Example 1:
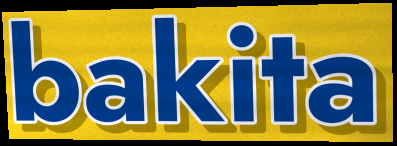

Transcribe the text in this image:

bakita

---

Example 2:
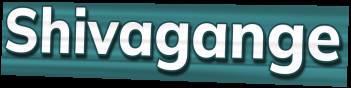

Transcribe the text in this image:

Shivagange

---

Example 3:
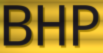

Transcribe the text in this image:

BHP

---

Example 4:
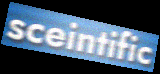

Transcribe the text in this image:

sceintific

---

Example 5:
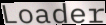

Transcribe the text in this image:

Loader